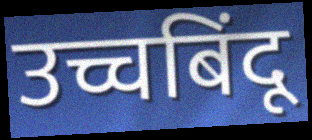
उच्चबिंदू